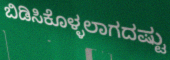
ಬಿಡಿಸಿಕೊಳ್ಳಲಾಗದಷ್ಟು